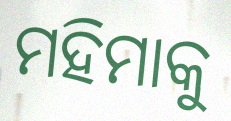
ମହିମାକୁ